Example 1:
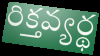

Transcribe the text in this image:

రిక్తవ్యర్థ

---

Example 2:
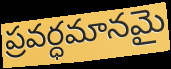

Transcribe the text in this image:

ప్రవర్ధమానమై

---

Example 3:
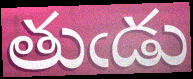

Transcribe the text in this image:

తుఁడు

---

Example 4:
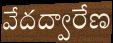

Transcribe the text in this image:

వేదద్వారేణ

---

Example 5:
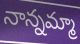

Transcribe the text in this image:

నాన్నమ్మా